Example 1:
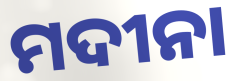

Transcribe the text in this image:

ମଦୀନା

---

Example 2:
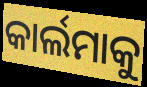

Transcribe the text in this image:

କାର୍ଲମାକୁ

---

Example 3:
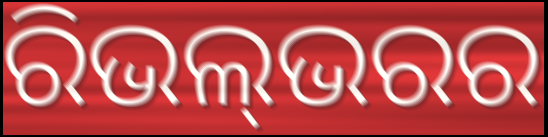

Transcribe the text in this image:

ରିଭଲ୍‍ଭରର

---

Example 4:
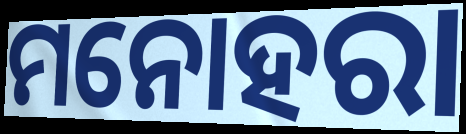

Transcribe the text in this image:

ମନୋହରା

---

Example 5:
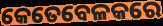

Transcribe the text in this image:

କେତେବେଳକରେ